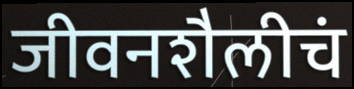
जीवनशैलीचं